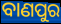
ବାଣପୁର